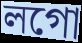
লগো